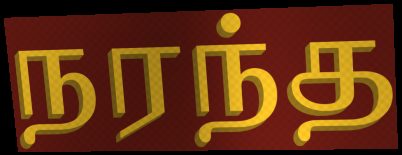
நரந்த